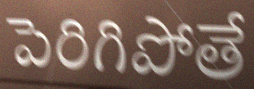
పెరిగిపోతే